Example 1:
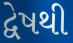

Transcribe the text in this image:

દ્વેષથી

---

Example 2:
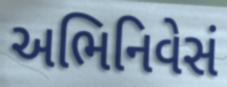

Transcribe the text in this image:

અભિનિવેસં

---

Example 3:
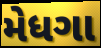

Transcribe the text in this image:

મેધગા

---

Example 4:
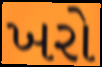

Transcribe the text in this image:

ખરો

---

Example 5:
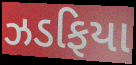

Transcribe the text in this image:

ઝડફિયા